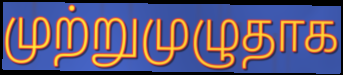
முற்றுமுழுதாக